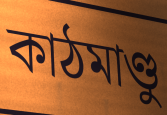
কাঠমাণ্ডু